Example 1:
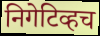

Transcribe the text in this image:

निगेटिव्हच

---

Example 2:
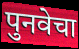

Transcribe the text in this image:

पुनवेचा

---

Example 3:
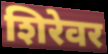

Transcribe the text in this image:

शिरेवर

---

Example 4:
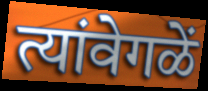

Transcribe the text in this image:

त्यांवेगळें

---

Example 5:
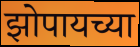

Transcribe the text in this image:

झोपायच्या